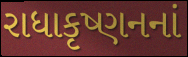
રાધાકૃષ્ણનનાં